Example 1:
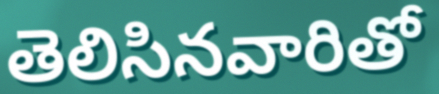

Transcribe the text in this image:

తెలిసినవారితో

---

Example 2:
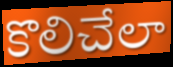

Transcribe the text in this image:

కొలిచేలా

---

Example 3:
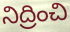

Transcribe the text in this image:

నిద్రించి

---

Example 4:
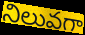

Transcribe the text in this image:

నిలువగా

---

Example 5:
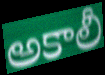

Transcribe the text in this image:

అకాలీ